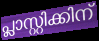
പ്ലാസ്റ്റിക്കിന്